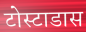
टोस्टाडास